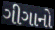
ગીગાનો